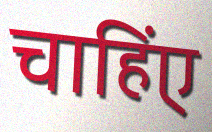
चाहिंए